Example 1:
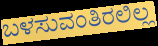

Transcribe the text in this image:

ಬಳಸುವಂತಿರಲಿಲ್ಲ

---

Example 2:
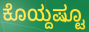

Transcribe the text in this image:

ಕೊಯ್ದಷ್ಟೂ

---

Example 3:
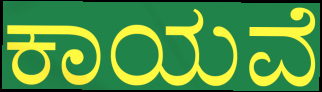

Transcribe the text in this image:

ಕಾಯವೆ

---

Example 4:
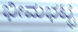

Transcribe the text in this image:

ಭೀಮಭಟ್ಟ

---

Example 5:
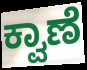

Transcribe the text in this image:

ಕ್ವಾಣೆ